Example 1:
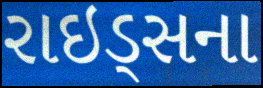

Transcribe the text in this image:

રાઇડ્સના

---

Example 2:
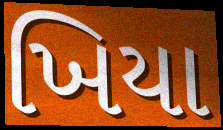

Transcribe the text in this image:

ખિયા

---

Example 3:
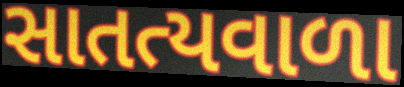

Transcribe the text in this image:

સાતત્યવાળા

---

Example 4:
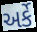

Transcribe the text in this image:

અર્કે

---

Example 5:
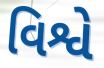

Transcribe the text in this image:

વિશ્વે